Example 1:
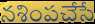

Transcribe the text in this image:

నశింపచేసే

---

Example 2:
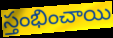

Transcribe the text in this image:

స్తంభించాయి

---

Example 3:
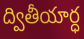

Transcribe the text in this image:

ద్వితీయార్ధ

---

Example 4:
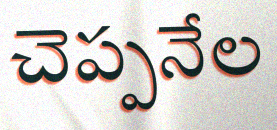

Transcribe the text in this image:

చెప్పనేల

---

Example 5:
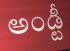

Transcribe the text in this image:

అండ్టీ